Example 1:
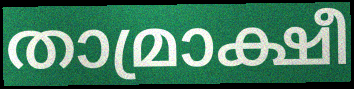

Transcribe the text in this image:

താമ്രാക്ഷീ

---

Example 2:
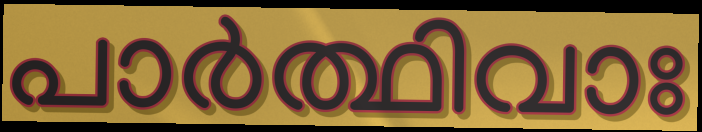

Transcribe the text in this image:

പാർത്ഥിവാഃ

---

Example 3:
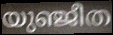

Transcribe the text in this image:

യുഞ്ജീത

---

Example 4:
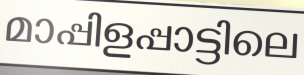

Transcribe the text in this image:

മാപ്പിളപ്പാട്ടിലെ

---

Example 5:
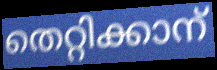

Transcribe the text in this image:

തെറ്റിക്കാന്